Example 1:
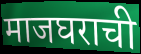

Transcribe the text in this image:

माजघराची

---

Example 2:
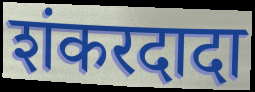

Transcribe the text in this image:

शंकरदादा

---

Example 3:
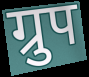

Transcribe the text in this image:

ग्रुप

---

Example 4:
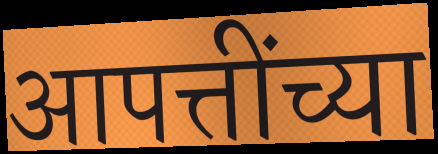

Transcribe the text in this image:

आपत्तींच्या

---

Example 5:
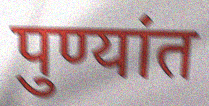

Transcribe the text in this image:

पुण्यांत